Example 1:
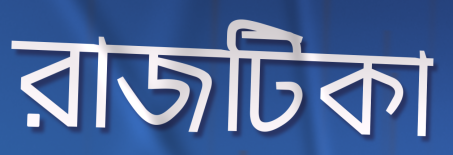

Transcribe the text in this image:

রাজটিকা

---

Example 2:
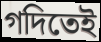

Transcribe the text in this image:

গদিতেই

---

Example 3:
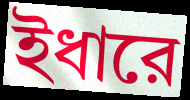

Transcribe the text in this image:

ইধারে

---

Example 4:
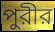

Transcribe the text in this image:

পুরীর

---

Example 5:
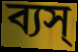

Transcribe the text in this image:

ব্যস্